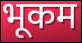
भूकम